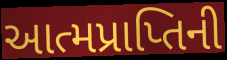
આત્મપ્રાપ્તિની